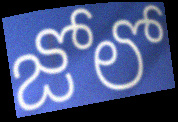
జోలో